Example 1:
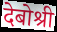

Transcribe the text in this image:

देबोश्री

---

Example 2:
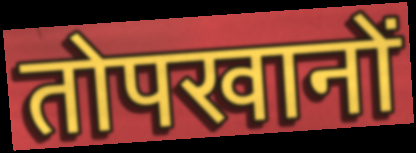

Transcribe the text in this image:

तोपखानों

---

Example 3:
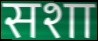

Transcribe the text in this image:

सशा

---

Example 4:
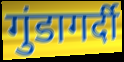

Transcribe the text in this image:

गुंडागर्दी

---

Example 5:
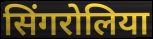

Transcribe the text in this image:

सिंगरोलिया